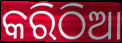
କରିଠିଆ